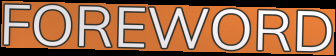
FOREWORD